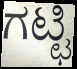
ಗಟ್ಟಿ